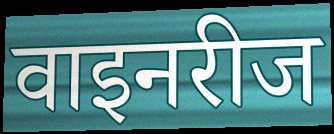
वाइनरीज